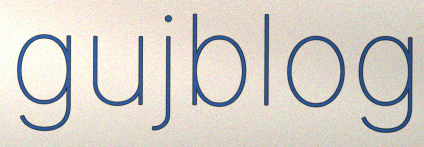
gujblog